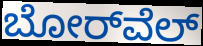
ಬೋರ್‌ವೆಲ್